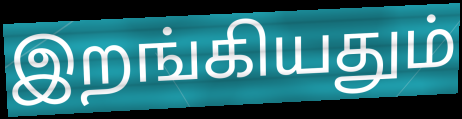
இறங்கியதும்